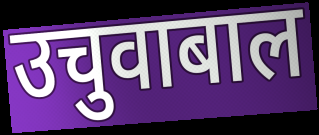
उचुवाबाल